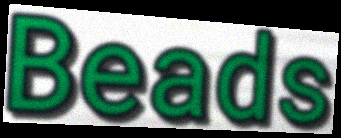
Beads